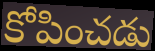
కోపించడు